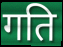
गति